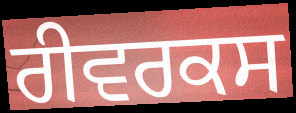
ਰੀਵਰਕਸ